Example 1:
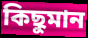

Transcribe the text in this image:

কিছুমান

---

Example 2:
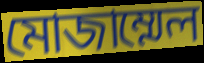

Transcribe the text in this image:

মোজাম্মেল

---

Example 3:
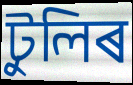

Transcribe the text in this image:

টুলিৰ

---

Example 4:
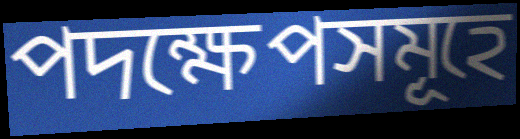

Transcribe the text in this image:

পদক্ষেপসমূহে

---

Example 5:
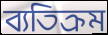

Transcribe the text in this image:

ব্যতিক্ৰম